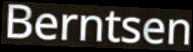
Berntsen